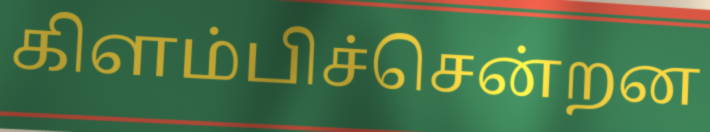
கிளம்பிச்சென்றன